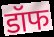
डॉफ